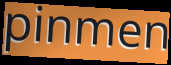
pinmen